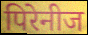
पिरेनीज